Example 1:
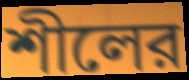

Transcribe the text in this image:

শীলের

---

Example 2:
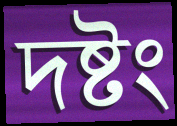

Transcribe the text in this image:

দষ্টং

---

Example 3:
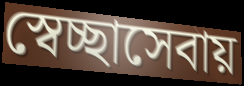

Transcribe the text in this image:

স্বেচ্ছাসেবায়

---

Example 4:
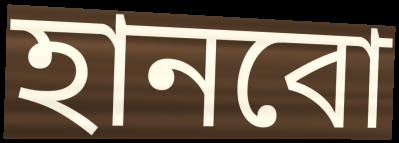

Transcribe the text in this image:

হানবো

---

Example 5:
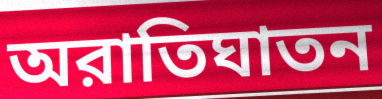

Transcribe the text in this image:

অরাতিঘাতন